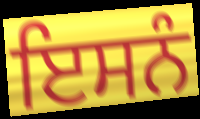
ਇਸਨੰ